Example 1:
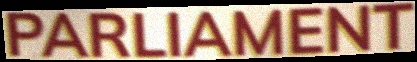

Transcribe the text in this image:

PARLIAMENT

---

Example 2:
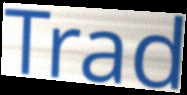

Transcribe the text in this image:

Trad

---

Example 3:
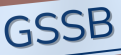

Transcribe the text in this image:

GSSB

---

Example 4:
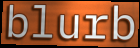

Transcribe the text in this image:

blurb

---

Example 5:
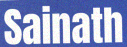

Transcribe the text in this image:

Sainath